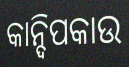
କାନ୍ଦିପକାଉ